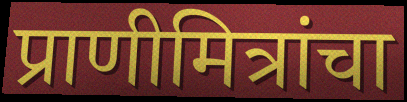
प्राणीमित्रांचा